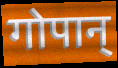
गोपान्